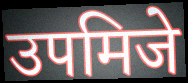
उपमिजे